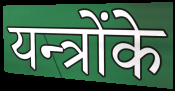
यन्त्रोंके